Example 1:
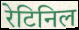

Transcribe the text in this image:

रेटिनिल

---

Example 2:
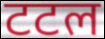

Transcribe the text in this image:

टटल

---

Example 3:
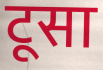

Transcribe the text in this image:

टूसा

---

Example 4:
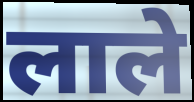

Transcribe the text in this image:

लाले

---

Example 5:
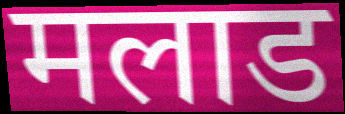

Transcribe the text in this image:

मलाड